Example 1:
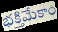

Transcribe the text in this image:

భక్తిమేకాం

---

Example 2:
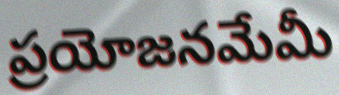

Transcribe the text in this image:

ప్రయోజనమేమీ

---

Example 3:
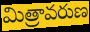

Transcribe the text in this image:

మిత్రావరుణ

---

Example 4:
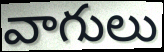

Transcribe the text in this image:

వాగులు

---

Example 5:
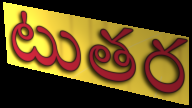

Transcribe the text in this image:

టుతర